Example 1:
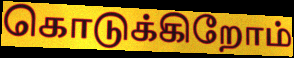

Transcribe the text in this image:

கொடுக்கிறோம்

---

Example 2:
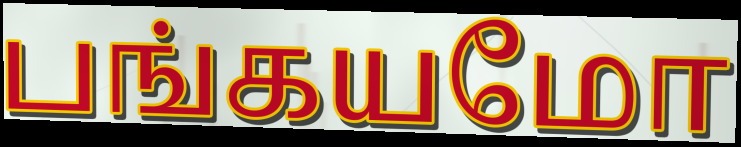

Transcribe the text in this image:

பங்கயமோ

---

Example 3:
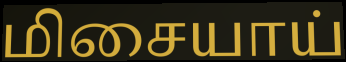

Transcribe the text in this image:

மிசையாய்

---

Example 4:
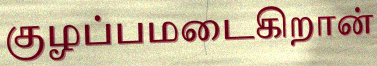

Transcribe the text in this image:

குழப்பமடைகிறான்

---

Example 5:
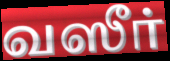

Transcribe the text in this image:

வஸீர்